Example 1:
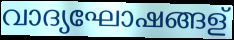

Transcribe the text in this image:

വാദ്യഘോഷങ്ങള്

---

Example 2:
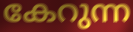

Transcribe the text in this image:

കേറുന്ന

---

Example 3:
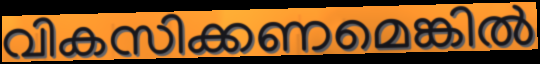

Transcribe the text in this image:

വികസിക്കണമെങ്കിൽ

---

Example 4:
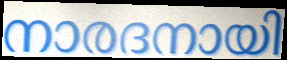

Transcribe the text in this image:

നാരദനായി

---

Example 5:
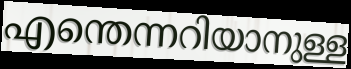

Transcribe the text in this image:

എന്തെന്നറിയാനുള്ള